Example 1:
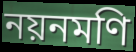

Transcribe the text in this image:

নয়নমণি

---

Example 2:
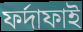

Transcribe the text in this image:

ফর্দাফাই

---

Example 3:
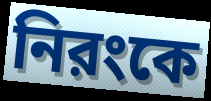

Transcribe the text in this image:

নিরংকে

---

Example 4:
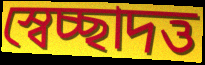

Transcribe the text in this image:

স্বেচ্ছাদত্ত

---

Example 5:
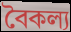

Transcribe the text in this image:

বৈকল্য